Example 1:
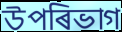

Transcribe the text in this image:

উপৰিভাগ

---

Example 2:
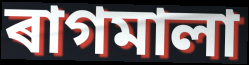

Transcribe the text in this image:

ৰাগমালা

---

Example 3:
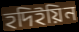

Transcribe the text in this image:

হদিইয়িন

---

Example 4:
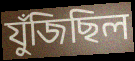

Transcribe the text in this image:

যুঁজিছিল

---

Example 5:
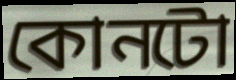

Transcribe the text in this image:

কোনটো